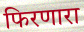
फिरणारा